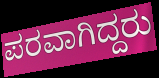
ಪರವಾಗಿದ್ದರು